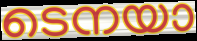
ടെനയാ